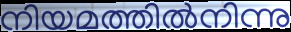
നിയമത്തിൽനിന്നു